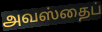
அவஸ்தைப்